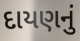
દાયણનું